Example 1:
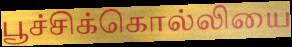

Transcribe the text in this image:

பூச்சிக்கொல்லியை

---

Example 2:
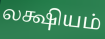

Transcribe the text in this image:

லக்ஷியம்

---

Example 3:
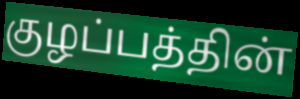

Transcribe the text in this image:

குழப்பத்தின்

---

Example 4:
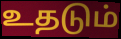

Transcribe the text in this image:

உதடும்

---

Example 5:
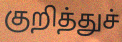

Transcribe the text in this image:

குறித்துச்